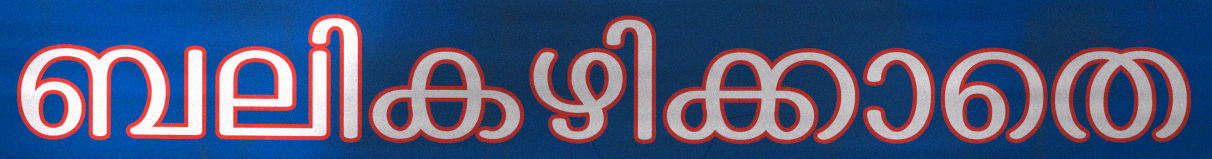
ബലികഴിക്കാതെ